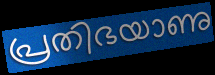
പ്രതിഭയാണു